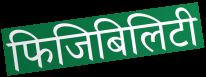
फिजिबिलिटी